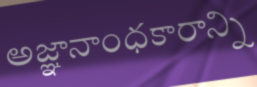
అజ్ఞానాంధకారాన్ని